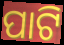
ପାଟି